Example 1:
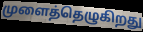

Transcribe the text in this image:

முளைத்தெழுகிறது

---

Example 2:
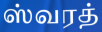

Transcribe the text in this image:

ஸ்வரத்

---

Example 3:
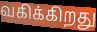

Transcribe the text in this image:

வகிக்கிறது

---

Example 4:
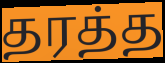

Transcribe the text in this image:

தரத்த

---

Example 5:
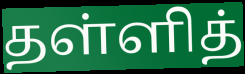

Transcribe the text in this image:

தள்ளித்